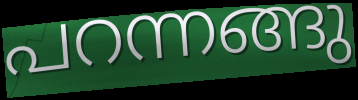
പറന്നങ്ങു